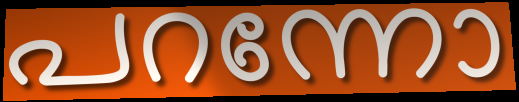
പറന്നോ